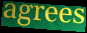
agrees